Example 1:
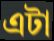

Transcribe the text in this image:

এটা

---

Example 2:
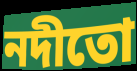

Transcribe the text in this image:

নদীতো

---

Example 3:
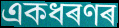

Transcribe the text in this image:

একধৰণৰ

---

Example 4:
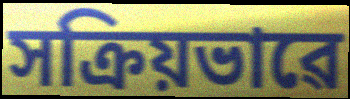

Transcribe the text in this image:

সক্ৰিয়ভাৱে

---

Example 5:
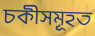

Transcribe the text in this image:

চকীসমূহত